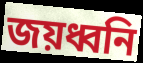
জয়ধ্বনি